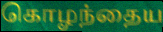
கொழந்தைய